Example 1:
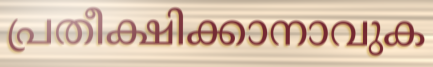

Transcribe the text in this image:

പ്രതീക്ഷിക്കാനാവുക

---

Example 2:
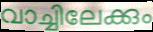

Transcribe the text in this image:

വാച്ചിലേക്കും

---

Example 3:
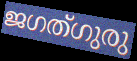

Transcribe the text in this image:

ജഗത്ഗുരു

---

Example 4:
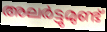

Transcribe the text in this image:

അലർട്ടുമുണ്ട്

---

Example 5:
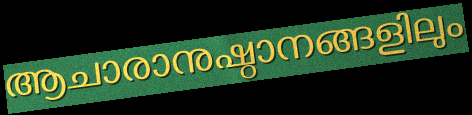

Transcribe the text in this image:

ആചാരാനുഷ്ഠാനങ്ങളിലും